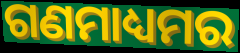
ଗଣମାଧ୍ୟମର